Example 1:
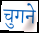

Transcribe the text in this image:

चुगने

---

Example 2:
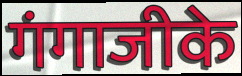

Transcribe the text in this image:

गंगाजीके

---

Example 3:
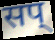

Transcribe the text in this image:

सप्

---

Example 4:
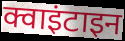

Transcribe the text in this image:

क्वाइंटाइन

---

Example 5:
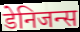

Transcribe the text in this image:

डेनिजन्स